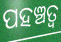
ପହଞ୍ଚତ୍ବ